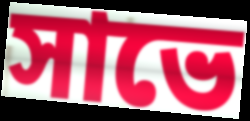
সাভে